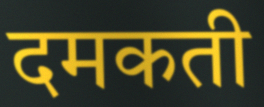
दमकती